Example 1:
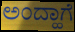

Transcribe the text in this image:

ಅಂದ್ಹಾಗೆ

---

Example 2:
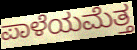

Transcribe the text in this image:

ಪಾಳೆಯಮೆತ್ತ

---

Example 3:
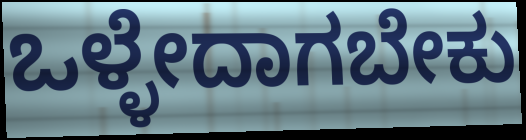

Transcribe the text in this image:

ಒಳ್ಳೇದಾಗಬೇಕು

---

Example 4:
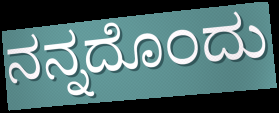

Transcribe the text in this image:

ನನ್ನದೊಂದು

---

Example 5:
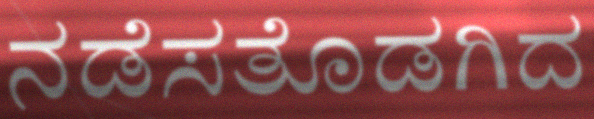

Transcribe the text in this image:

ನಡೆಸತೊಡಗಿದ